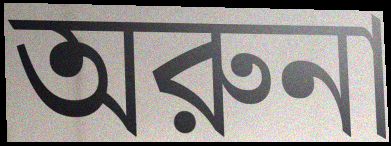
অরুনা